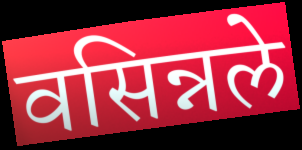
वसिन्नले